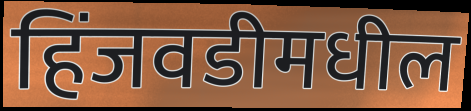
हिंजवडीमधील